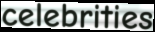
celebrities